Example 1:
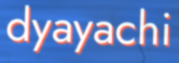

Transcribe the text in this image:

dyayachi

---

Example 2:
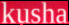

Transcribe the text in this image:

kusha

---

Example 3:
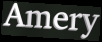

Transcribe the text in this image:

Amery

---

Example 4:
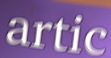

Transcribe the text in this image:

artic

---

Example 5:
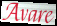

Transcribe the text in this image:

Avare